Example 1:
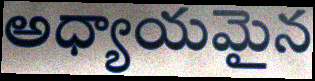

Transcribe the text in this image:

అధ్యాయమైన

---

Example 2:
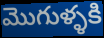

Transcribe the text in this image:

మొగుళ్ళకి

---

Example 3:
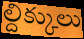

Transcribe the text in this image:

ల్దిక్కులు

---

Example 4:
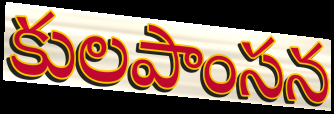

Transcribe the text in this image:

కులపాంసన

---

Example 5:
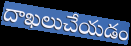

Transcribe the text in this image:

దాఖలుచేయడం